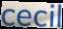
cecil